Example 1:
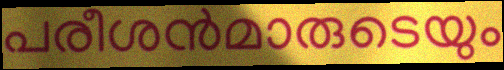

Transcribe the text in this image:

പരീശൻമാരുടെയും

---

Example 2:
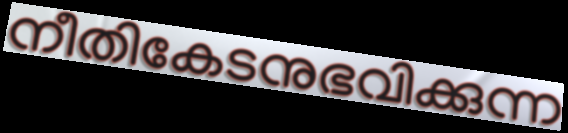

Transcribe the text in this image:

നീതികേടനുഭവിക്കുന്ന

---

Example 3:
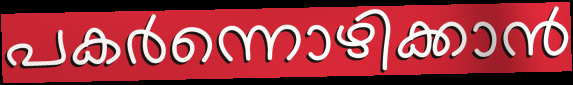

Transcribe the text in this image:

പകർന്നൊഴിക്കാൻ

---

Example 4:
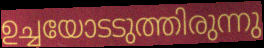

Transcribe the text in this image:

ഉച്ചയോടടുത്തിരുന്നു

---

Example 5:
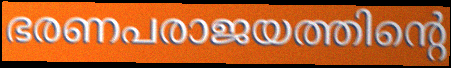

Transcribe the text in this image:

ഭരണപരാജയത്തിന്റെ